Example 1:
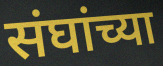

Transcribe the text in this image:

संघांच्या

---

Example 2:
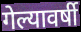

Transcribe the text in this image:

गेल्यावर्षी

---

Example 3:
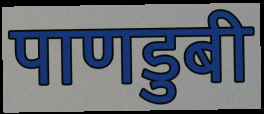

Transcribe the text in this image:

पाणडुबी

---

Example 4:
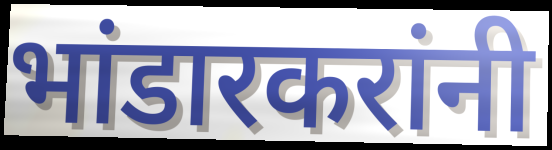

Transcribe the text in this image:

भांडारकरांनी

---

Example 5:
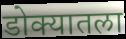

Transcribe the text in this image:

डोक्यातला